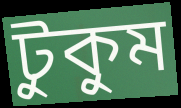
টুকুম